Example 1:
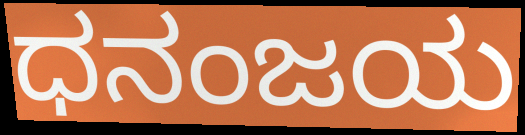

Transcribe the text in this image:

ಧನಂಜಯ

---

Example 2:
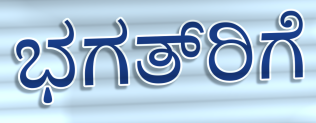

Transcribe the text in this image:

ಭಗತ್‍ರಿಗೆ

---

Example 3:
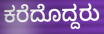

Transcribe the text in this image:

ಕರೆದೊದ್ದರು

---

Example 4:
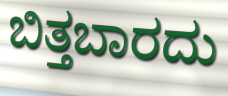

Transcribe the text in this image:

ಬಿತ್ತಬಾರದು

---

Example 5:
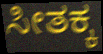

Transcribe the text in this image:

ಸೀತಕ್ಕ